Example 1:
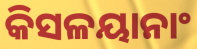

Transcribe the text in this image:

କିସଳୟାନାଂ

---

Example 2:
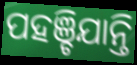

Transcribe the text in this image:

ପହଞ୍ଚିଯାନ୍ତି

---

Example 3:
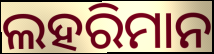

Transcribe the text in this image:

ଲହରିମାନ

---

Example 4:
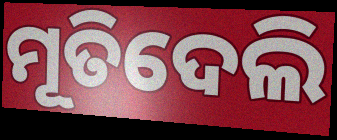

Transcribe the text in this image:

ମୂତିଦେଲି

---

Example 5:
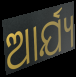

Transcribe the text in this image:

ଆର୍ଯ୍ୟ